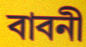
বাবনী